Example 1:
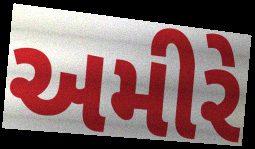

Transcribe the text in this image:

અમીરે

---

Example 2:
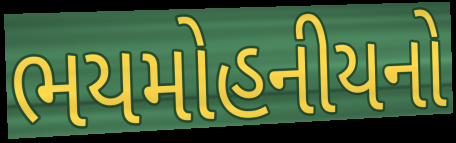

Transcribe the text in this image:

ભયમોહનીયનો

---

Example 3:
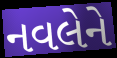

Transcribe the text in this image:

નવલેને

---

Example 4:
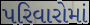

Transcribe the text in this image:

પરિવારોમાં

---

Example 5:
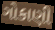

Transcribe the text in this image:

ગોકાણી